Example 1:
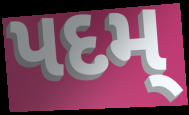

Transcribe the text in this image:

પદમ્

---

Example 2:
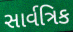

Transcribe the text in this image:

સાર્વત્રિક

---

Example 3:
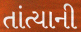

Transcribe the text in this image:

તાંત્યાની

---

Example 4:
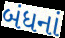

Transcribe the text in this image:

બંધનાં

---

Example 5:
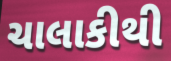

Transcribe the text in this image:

ચાલાકીથી